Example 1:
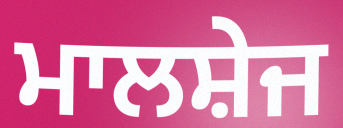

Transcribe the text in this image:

ਮਾਲਸ਼ੇਜ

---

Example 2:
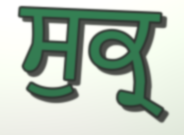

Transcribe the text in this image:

ਸੁਕ੍ਰ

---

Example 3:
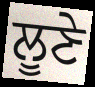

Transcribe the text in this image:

ਲੂਣੇ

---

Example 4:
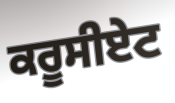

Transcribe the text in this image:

ਕਰੂਸੀਏਟ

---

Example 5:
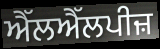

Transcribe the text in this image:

ਐੱਲਐੱਲਪੀਜ਼